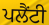
ਪਲੈਂਟੀ